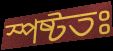
স্পষ্টতঃ